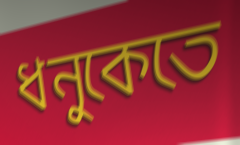
ধনুকেতে